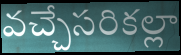
వచ్చేసరికల్లా